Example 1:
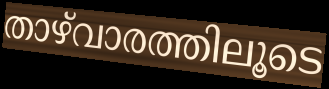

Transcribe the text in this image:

താഴ്‌വാരത്തിലൂടെ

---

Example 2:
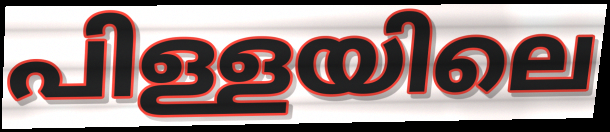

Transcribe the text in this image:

പിള്ളയിലെ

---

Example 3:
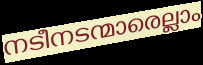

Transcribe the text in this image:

നടീനടന്മാരെല്ലാം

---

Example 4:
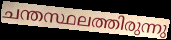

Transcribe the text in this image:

ചന്തസ്ഥലത്തിരുന്നു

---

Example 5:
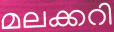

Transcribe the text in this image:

മലക്കറി